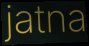
jatna